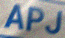
APJ